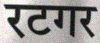
रटगर